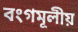
বংগমূলীয়